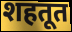
शहतूत